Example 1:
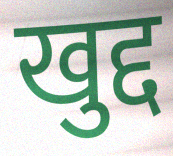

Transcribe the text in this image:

खुद्द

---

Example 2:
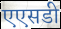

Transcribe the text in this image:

एएसडी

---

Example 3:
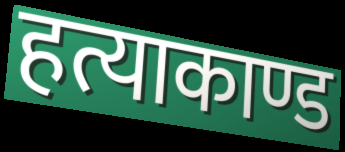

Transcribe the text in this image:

हत्याकाण्ड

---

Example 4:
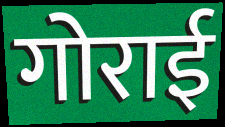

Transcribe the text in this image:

गोराई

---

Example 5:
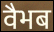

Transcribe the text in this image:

वैभब